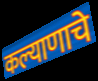
कल्याणाचे